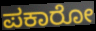
ಪಕಾರೋ